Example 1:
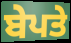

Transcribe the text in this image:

ਬੇਪਤੇ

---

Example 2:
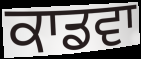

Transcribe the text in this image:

ਕਾਡਵਾ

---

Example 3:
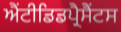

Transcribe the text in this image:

ਐਂਟੀਡਿਡਪ੍ਰੈਸੈਂਟਸ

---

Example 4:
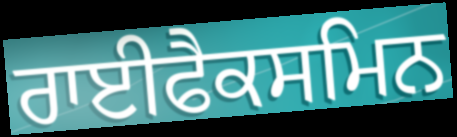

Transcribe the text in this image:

ਰਾਈਫੈਕਸਮਿਨ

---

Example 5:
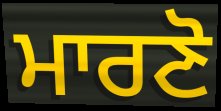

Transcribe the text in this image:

ਮਾਰਣੋ